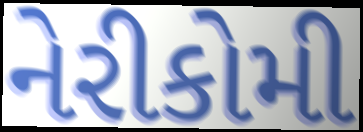
નેરીકોમી